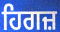
ਹਿਗਜ਼